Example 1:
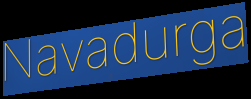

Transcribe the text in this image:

Navadurga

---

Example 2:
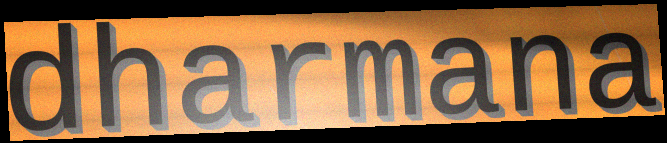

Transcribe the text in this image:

dharmana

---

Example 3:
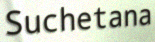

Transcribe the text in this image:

Suchetana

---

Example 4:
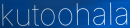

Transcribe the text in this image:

kutoohala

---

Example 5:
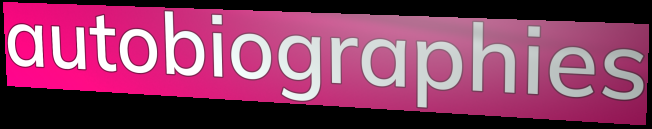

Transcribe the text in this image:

autobiographies